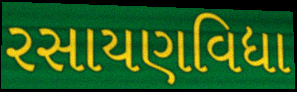
રસાયણવિદ્યા